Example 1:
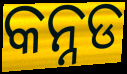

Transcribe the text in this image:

କନ୍ନଡ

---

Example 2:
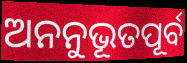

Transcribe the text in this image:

ଅନନୁଭୂତପୂର୍ବ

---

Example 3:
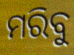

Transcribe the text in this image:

ମରିବୁ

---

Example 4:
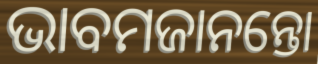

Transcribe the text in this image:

ଭାବମଜାନନ୍ତୋ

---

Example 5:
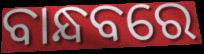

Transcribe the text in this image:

ବାନ୍ଧବରେ